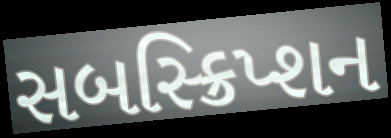
સબસ્ક્રિપ્શન